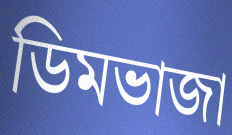
ডিমভাজা